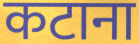
कटाना